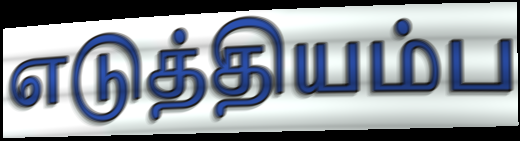
எடுத்தியம்ப